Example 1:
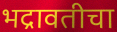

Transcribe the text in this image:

भद्रावतीचा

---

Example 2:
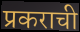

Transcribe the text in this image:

प्रकराची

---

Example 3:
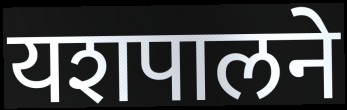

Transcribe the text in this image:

यशपालने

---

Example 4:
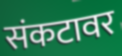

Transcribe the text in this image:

संकटावर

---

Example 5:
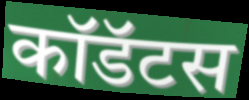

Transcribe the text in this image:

कॉडॅटस